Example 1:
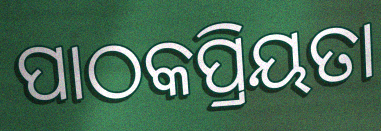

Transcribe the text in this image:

ପାଠକପ୍ରିୟତା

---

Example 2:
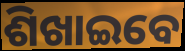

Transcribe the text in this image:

ଶିଖାଇବେ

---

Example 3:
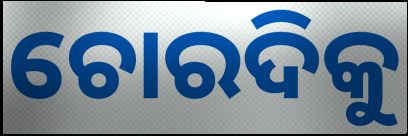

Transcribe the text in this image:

ଚୋରଦିକୁ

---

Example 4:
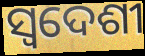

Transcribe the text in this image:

ସ୍ୱଦେଶୀ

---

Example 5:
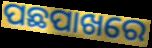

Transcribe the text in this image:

ପଛପାଖରେ